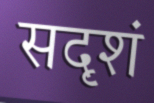
सदृशं